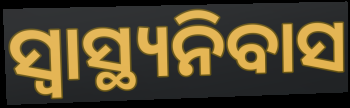
ସ୍ୱାସ୍ଥ୍ୟନିବାସ